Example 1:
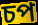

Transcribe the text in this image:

চপ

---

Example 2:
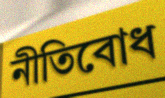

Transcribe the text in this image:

নীতিবোধ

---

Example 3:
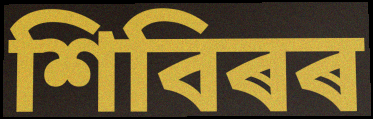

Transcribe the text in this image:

শিবিৰৰ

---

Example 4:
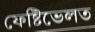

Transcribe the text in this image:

ফেষ্টিভেলত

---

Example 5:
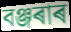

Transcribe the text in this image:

বঞ্জৰাৰ